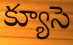
క్యూసె